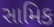
સામિક